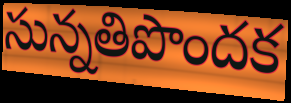
సున్నతిపొందక